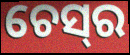
ଚେସ୍‌ର